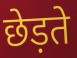
छेड़ते